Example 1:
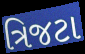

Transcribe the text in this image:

ત્રિજટા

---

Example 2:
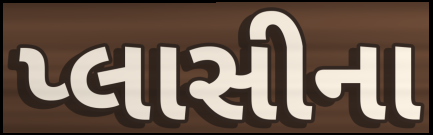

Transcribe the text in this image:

પ્લાસીના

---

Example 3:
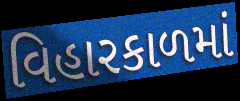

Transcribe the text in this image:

વિહારકાળમાં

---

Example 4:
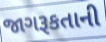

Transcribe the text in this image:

જાગરૂકતાની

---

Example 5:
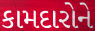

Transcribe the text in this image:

કામદારોને